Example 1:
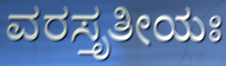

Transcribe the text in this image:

ವರಸ್ತೃತೀಯಃ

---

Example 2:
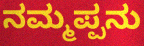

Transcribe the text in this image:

ನಮ್ಮಪ್ಪನು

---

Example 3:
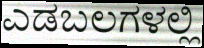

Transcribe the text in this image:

ಎಡಬಲಗಳಲ್ಲಿ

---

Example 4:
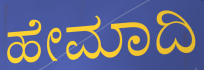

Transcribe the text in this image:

ಹೇಮಾದಿ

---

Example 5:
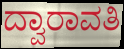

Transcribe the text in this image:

ದ್ವಾರಾವತಿ